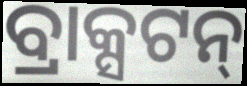
ବ୍ରାକ୍ସଟନ୍